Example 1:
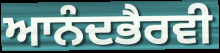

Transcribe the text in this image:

ਆਨੰਦਭੈਰਵੀ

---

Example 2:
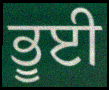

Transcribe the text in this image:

ਭੂਈ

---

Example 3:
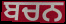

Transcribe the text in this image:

ਬਚਨ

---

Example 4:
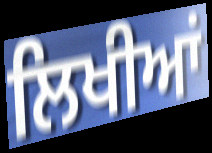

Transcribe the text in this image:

ਲਿਖੀਆਂ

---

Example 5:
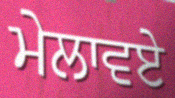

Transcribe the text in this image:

ਮੇਲਾਵਏ